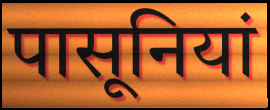
पासूनियां